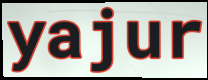
yajur